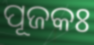
ପୂଜକଃ